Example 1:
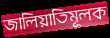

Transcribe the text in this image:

জালিয়াতিমূলক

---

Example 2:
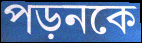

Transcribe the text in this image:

পড়নকে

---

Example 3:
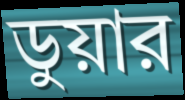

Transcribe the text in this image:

ডুয়ার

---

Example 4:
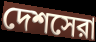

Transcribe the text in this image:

দেশসেরা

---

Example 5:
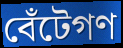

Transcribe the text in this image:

বেঁটেগণ